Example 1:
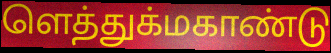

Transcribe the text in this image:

ளெத்துக்மகாண்டு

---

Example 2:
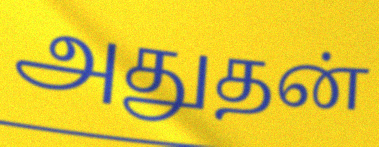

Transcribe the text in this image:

அதுதன்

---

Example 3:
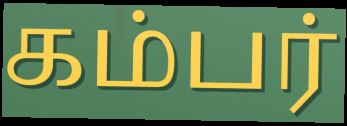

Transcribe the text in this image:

கம்பர்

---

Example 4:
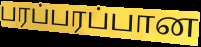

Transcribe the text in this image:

பரப்பரப்பான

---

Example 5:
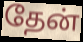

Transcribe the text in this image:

தேன்